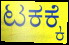
ಟಕಕ್ಕೆ